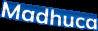
Madhuca